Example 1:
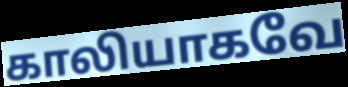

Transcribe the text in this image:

காலியாகவே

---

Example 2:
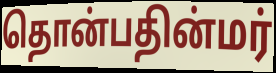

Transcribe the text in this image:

தொன்பதின்மர்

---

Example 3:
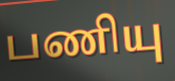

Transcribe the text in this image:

பணியு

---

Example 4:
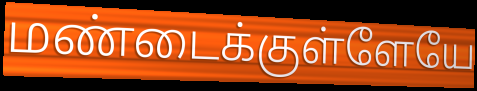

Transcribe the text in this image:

மண்டைக்குள்ளேயே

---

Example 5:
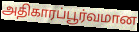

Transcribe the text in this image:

அதிகாரப்பூர்வமான